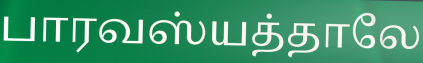
பாரவஸ்யத்தாலே